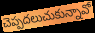
చెప్పదలుచుకున్నావో